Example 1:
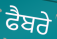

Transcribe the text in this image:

ਫੈਬਰੇ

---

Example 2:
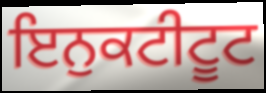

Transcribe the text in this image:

ਇਨੁਕਟੀਟੂਟ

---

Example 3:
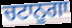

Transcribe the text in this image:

ਚਟਾਨੂਗਾ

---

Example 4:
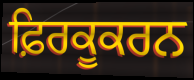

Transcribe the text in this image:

ਫ਼ਿਰਕੂਕਰਨ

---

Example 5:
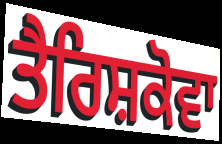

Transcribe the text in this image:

ਤੈਰਿਸ਼ਕੋਵਾ